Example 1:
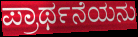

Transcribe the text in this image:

ಪ್ರಾರ್ಥನೆಯನು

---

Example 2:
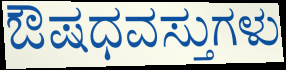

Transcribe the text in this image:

ಔಷಧವಸ್ತುಗಳು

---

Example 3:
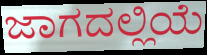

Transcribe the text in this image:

ಜಾಗದಲ್ಲಿಯೆ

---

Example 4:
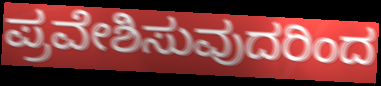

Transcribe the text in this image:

ಪ್ರವೇಶಿಸುವುದರಿಂದ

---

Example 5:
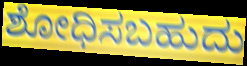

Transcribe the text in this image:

ಶೋಧಿಸಬಹುದು